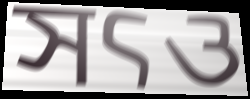
সৎও